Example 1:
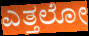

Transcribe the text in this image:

ಎತ್ತಲೋ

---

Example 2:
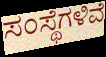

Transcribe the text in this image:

ಸಂಸ್ಥೆಗಳಿವೆ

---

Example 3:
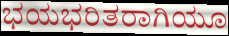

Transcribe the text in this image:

ಭಯಭರಿತರಾಗಿಯೂ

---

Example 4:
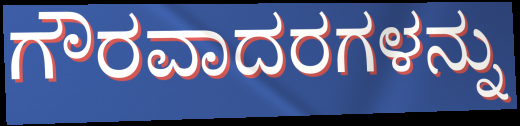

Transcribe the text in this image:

ಗೌರವಾದರಗಳನ್ನು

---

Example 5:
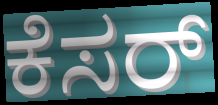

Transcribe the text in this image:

ಕೆಸರ್